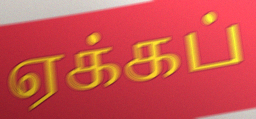
ஏக்கப்